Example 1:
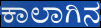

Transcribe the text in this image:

ಕಾಲಾಗಿನ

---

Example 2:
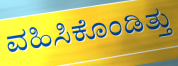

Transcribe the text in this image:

ವಹಿಸಿಕೊಂಡಿತ್ತು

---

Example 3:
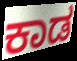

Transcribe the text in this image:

ಕಾಡ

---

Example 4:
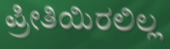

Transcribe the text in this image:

ಪ್ರೀತಿಯಿರಲಿಲ್ಲ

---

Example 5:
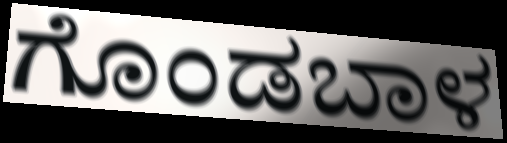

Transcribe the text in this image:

ಗೊಂಡಬಾಳ